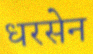
धरसेन